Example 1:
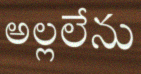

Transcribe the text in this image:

అల్లలేను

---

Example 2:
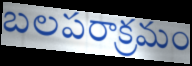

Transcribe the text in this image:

బలపరాక్రమం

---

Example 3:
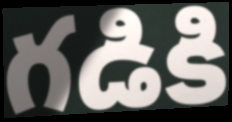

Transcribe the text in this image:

గడికి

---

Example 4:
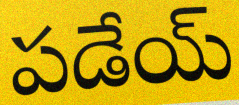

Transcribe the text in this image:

పడేయ్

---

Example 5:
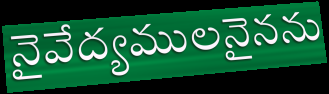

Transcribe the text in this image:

నైవేద్యములనైనను